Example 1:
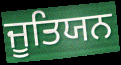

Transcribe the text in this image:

ਜੂਤਿਯਨ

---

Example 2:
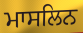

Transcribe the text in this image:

ਮਾਸਲਿਨ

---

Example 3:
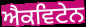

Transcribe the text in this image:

ਐਕਵਿਟੇਨ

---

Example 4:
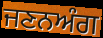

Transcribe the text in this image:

ਜਣਨਅੰਗ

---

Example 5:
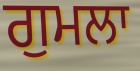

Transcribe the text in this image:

ਗੁਮਲਾ